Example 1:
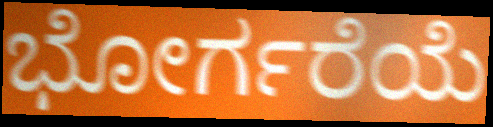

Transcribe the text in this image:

ಭೋರ್ಗರೆಯೆ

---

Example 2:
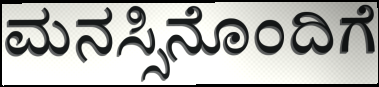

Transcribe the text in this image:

ಮನಸ್ಸಿನೊಂದಿಗೆ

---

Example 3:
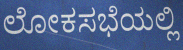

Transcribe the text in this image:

ಲೋಕಸಭೆಯಲ್ಲಿ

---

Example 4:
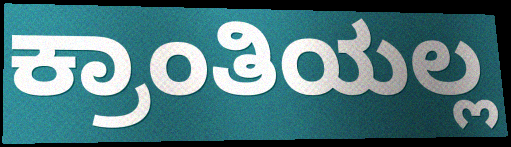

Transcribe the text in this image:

ಕ್ರಾಂತಿಯಲ್ಲ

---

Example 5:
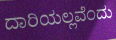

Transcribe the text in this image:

ದಾರಿಯಲ್ಲವೆಂದು